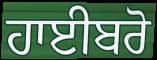
ਹਾਈਬਰੋ